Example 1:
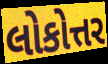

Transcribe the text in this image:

લોકોત્તર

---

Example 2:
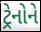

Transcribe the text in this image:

ટ્રેનોને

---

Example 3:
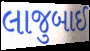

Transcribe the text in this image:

લાજુબાઈ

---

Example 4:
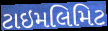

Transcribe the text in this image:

ટાઇમલિમિટ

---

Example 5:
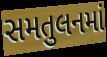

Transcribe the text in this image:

સમતુલનમાં